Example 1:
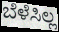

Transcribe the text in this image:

ಬೆಳೆಸಿಲ್ಲ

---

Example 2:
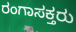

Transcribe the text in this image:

ರಂಗಾಸಕ್ತರು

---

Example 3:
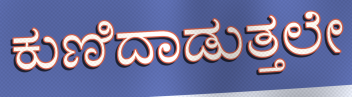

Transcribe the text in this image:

ಕುಣಿದಾಡುತ್ತಲೇ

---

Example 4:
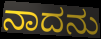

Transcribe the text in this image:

ನಾದನು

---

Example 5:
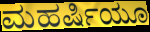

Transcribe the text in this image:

ಮಹರ್ಷಿಯೂ